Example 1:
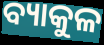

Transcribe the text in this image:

ବ୍ୟାକୁଳ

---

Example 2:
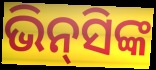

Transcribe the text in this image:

ଭିନ୍‍ସିଙ୍କ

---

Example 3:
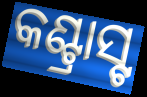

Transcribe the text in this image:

କଣ୍ଟ୍ରାସ୍ଟ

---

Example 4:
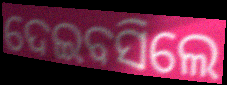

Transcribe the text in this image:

ଦେଇବସିଲେ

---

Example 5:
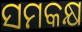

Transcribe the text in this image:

ସମକକ୍ଷ